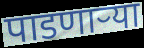
पाडणाऱ्या